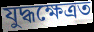
যুদ্ধক্ষেত্ৰত